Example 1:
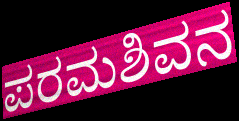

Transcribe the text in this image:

ಪರಮಶಿವನ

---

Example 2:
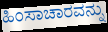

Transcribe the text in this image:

ಹಿಂಸಾಚಾರವನ್ನು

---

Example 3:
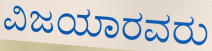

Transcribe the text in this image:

ವಿಜಯಾರವರು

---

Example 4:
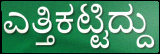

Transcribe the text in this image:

ಎತ್ತಿಕಟ್ಟಿದ್ದು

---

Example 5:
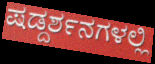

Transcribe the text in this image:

ಷಡ್ದರ್ಶನಗಳಲ್ಲಿ